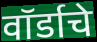
वॉर्डाचे